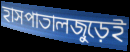
হাসপাতালজুড়েই